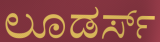
ಲೂಡರ್ಸ್